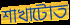
শাখাটোত